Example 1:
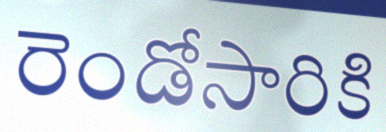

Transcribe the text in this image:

రెండోసారికి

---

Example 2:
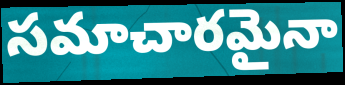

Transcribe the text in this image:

సమాచారమైనా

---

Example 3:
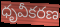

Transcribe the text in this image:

ధృవీకరణ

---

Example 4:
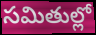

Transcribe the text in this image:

సమితుల్లో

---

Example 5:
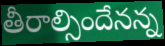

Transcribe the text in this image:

తీరాల్సిందేనన్న